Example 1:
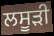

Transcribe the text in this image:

ਲਸੂੜੀ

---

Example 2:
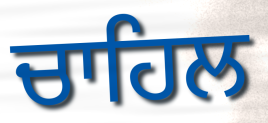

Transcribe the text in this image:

ਚਾਹਿਲ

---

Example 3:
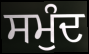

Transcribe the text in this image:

ਸਮੁੰਦ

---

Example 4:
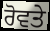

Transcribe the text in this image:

ਰੋਵਤੇ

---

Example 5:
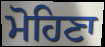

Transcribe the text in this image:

ਮੋਹਿਣਾ